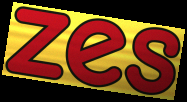
zes